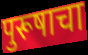
पुरूषाचा